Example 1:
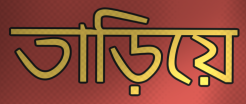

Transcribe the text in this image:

তাড়িয়ে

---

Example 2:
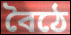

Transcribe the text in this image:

বৈঠে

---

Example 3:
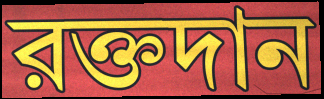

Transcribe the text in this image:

রক্তদান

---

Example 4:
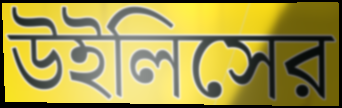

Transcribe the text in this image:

উইলিসের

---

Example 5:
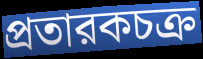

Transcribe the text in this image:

প্রতারকচক্র